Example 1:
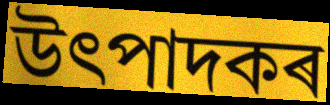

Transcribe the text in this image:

উৎপাদকৰ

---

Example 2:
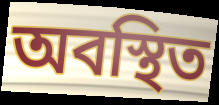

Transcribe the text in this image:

অবস্থিত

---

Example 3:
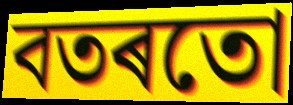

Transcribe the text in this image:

বতৰতো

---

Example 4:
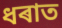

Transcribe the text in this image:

ধৰাত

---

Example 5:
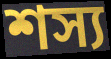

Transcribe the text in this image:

শস্য